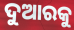
ଦୁଆରକୁ